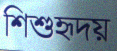
শিশুহৃদয়